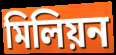
মিলিয়ন